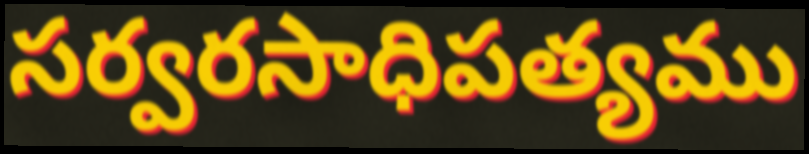
సర్వరసాధిపత్యము